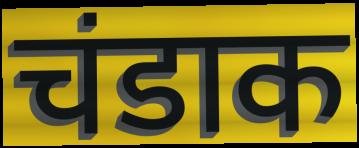
चंडाक